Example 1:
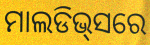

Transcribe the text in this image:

ମାଲଡିଭ୍‌ସରେ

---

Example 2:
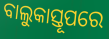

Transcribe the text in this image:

ବାଲୁକାସ୍ତୂପରେ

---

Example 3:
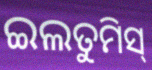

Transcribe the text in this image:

ଇଲତୁମିସ୍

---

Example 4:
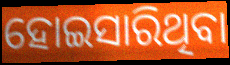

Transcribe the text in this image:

ହୋଇସାରିଥିବା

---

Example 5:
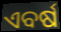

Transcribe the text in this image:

ଏବର୍ଷ